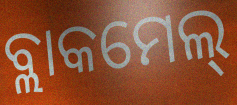
ବ୍ଲାକମେଲ୍